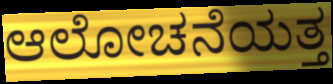
ಆಲೋಚನೆಯತ್ತ